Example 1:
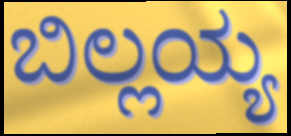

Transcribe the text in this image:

ಬಿಲ್ಲಯ್ಯ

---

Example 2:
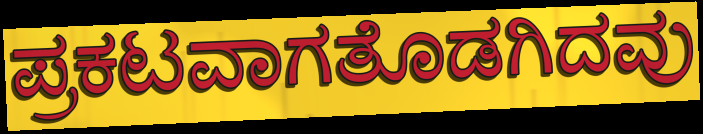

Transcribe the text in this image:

ಪ್ರಕಟವಾಗತೊಡಗಿದವು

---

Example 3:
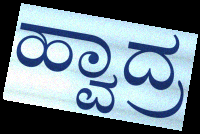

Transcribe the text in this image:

ಹ್ವಾದ್ರ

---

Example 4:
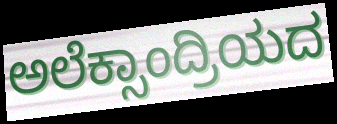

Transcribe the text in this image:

ಅಲೆಕ್ಸಾಂದ್ರಿಯದ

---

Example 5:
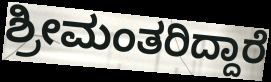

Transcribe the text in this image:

ಶ್ರೀಮಂತರಿದ್ದಾರೆ